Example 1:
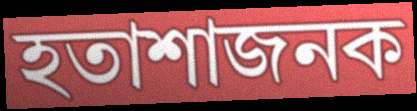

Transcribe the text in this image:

হতাশাজনক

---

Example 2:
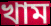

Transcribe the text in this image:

খাম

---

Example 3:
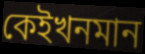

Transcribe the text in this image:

কেইখনমান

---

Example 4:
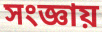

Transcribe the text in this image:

সংজ্ঞায়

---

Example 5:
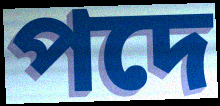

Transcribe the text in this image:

পদে